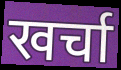
खर्चा